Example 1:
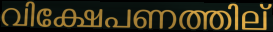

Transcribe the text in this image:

വിക്ഷേപണത്തില്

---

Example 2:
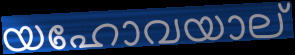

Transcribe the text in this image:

യഹോവയാല്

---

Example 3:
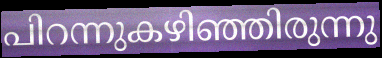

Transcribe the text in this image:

പിറന്നുകഴിഞ്ഞിരുന്നു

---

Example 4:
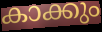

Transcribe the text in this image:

കാക്കും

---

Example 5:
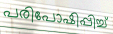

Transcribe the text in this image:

പരിപോഷിപ്പിച്ച്